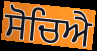
ਸੋਚਿਐ